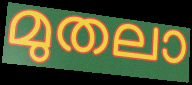
മുതലാ